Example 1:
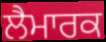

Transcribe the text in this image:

ਲੈਮਾਰਕ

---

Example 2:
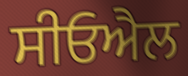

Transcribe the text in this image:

ਸੀਓਐਲ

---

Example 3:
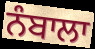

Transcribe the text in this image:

ਨੰਬਾਲਾ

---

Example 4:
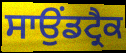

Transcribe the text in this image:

ਸਾਉਂਡਟ੍ਰੈਕ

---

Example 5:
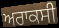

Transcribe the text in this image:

ਅਰਾਕਸੀ